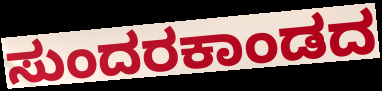
ಸುಂದರಕಾಂಡದ